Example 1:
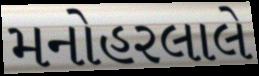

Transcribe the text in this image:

મનોહરલાલે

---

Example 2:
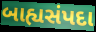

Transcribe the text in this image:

બાહ્યસંપદા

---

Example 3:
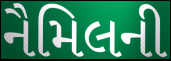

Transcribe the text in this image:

નૈમિલની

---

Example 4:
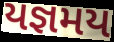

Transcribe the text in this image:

યજ્ઞમય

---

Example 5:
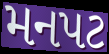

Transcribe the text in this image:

મનપટ